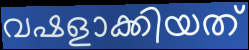
വഷളാക്കിയത്